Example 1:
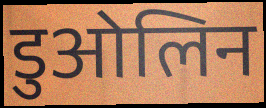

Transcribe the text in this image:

डुओलिन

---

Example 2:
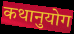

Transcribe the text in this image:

कथानुयोग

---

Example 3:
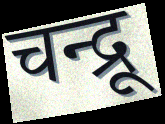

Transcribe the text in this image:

चन्द्रू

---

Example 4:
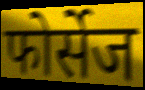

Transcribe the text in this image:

फोर्सेज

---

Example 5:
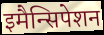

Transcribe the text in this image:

इमैन्सिपेशन